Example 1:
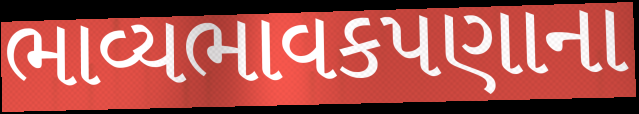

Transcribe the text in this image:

ભાવ્યભાવકપણાના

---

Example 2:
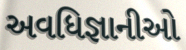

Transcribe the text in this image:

અવધિજ્ઞાનીઓ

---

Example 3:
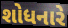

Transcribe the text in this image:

શોધનારે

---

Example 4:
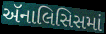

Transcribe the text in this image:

ઍનાલિસિસમાં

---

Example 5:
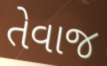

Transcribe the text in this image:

તેવાજ